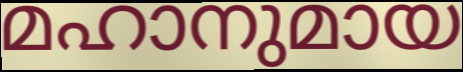
മഹാനുമായ